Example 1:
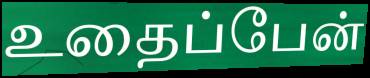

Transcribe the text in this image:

உதைப்பேன்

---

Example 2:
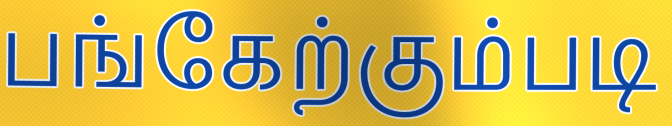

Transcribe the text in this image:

பங்கேற்கும்படி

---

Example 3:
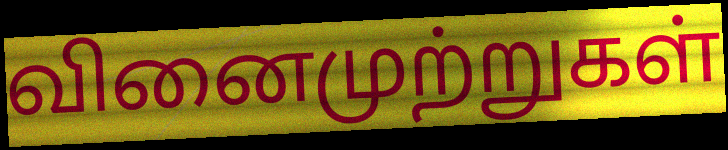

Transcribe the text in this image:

வினைமுற்றுகள்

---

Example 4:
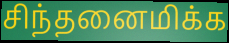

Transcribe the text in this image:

சிந்தனைமிக்க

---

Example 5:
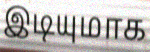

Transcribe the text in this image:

இடியுமாக